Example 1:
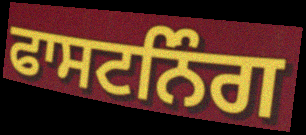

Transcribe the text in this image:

ਫਾਸਟਨਿੰਗ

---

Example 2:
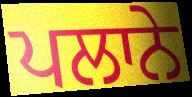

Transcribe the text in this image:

ਪਲਾਨੇ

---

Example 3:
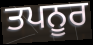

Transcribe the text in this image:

ਤਪਨੂਰ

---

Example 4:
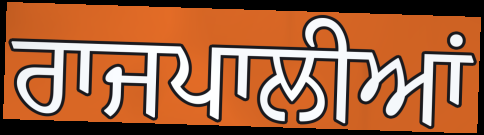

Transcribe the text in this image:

ਰਾਜਪਾਲੀਆਂ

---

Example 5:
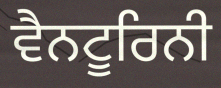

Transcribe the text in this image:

ਵੈਨਟੂਰਿਨੀ